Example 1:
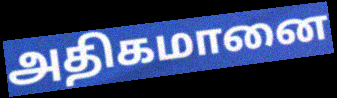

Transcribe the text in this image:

அதிகமானை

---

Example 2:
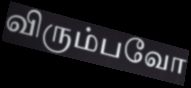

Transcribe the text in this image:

விரும்பவோ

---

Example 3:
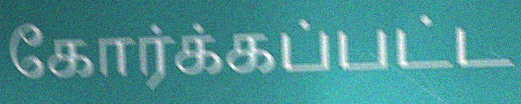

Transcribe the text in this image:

கோர்க்கப்பட்ட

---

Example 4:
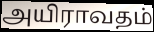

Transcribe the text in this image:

அயிராவதம்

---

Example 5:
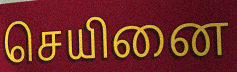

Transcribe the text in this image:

செயினை